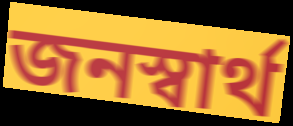
জনস্বার্থ